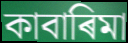
কাবাৰিমা